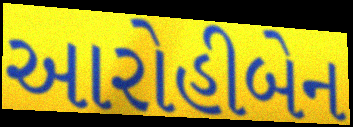
આરોહીબેન